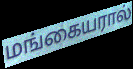
மங்கையரால்